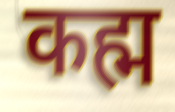
कह्म